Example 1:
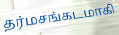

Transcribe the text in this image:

தர்மசங்கடமாகி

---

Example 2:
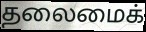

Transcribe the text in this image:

தலைமைக்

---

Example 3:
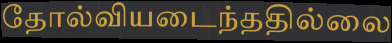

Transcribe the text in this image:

தோல்வியடைந்ததில்லை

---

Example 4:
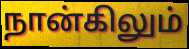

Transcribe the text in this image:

நான்கிலும்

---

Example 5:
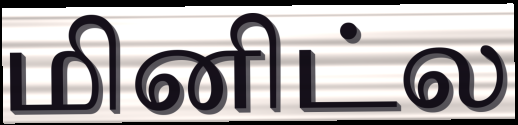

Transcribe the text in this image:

மினிட்ல